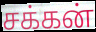
சக்கன்